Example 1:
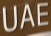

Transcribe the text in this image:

UAE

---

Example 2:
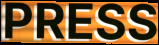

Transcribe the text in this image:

PRESS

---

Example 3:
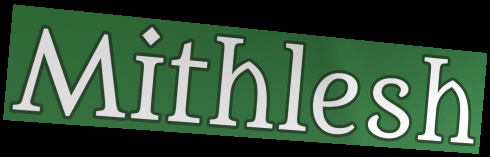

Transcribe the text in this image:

Mithlesh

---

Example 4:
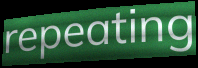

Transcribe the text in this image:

repeating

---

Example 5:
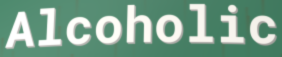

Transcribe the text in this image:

Alcoholic